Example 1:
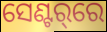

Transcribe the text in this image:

ସେଣ୍ଟର୍‌ରେ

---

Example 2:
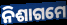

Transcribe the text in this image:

ନିଶାଗମେ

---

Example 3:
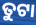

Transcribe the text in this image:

ତୁଟା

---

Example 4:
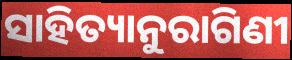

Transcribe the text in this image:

ସାହିତ୍ୟାନୁରାଗିଣୀ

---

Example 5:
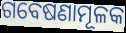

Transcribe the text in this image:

ଗବେଷଣାମୂଳକ